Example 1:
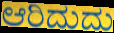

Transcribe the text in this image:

ಆರಿದುದು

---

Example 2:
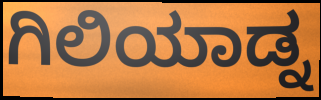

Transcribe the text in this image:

ಗಿಲಿಯಾಡ್ನ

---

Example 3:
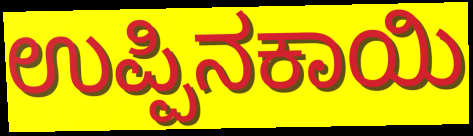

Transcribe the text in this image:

ಉಪ್ಪಿನಕಾಯಿ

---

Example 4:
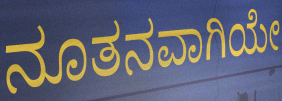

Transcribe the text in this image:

ನೂತನವಾಗಿಯೇ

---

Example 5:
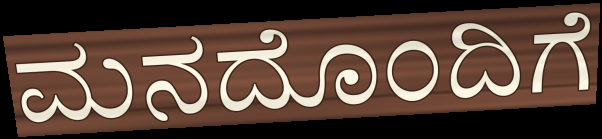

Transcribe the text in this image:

ಮನದೊಂದಿಗೆ